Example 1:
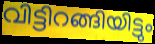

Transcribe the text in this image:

വിട്ടിറങ്ങിയിട്ടും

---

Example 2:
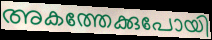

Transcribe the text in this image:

അകത്തേക്കുപോയി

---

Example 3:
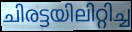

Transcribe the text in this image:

ചിരട്ടയിലിറ്റിച്ച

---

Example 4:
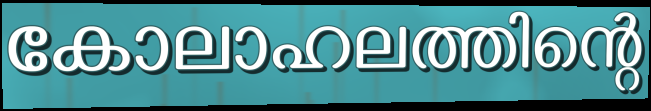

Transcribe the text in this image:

കോലാഹലത്തിന്റെ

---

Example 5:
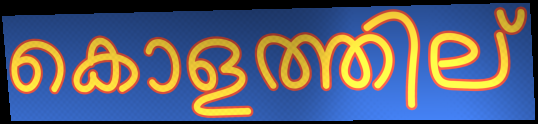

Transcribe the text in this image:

കൊളത്തില്